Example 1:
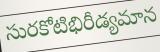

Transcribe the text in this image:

సురకోటిభిరీడ్యమాన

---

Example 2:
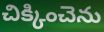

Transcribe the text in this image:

చిక్కించెను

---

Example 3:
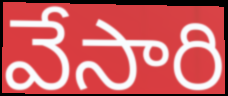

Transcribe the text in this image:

వేసారి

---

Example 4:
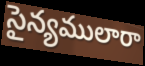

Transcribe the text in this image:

సైన్యములారా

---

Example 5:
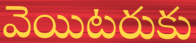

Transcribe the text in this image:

వెయిటరుకు